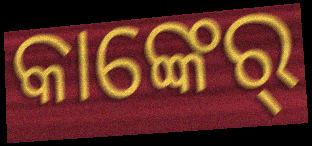
କାଙ୍କେର୍